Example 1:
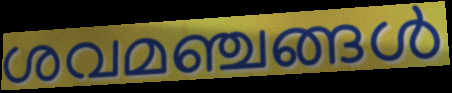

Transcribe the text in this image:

ശവമഞ്ചങ്ങൾ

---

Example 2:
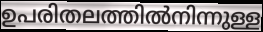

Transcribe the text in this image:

ഉപരിതലത്തിൽനിന്നുള്ള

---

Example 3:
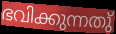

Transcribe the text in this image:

ഭവിക്കുന്നതു്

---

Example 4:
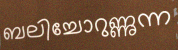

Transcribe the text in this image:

ബലിച്ചോറുണ്ണുന്ന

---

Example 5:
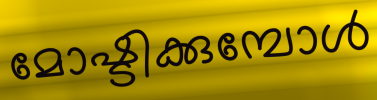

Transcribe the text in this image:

മോഷ്ടിക്കുമ്പോൾ